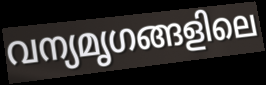
വന്യമൃഗങ്ങളിലെ